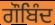
ਗੌਬਿੰਦ